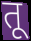
तू